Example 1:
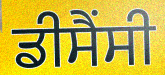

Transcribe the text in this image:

ਡੀਸੈਂਸੀ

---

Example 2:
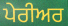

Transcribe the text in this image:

ਪੇਰੀਅਰ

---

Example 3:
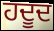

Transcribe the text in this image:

ਹਦੂਦ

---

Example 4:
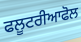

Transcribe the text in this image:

ਫਲੂਟਰੀਆਫੋਲ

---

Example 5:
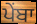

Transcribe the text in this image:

ਪੇਂਬਾ